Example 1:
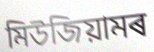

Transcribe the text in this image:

মিউজিয়ামৰ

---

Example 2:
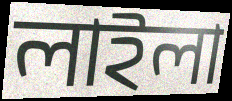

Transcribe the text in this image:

লাইলা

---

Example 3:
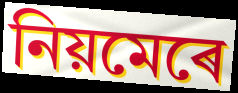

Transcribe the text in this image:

নিয়মেৰে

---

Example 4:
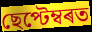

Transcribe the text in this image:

ছেপ্টেম্বৰত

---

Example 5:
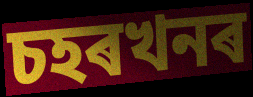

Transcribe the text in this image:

চহৰখনৰ